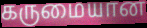
கருமையான